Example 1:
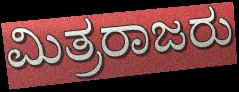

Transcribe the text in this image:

ಮಿತ್ರರಾಜರು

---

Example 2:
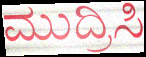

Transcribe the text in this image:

ಮುದ್ರಿಸಿ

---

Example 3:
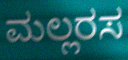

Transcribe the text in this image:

ಮಲ್ಲರಸ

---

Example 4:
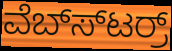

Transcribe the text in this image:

ವೆಬ್ಸ್‍ಟರ್ರ್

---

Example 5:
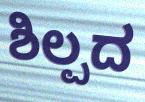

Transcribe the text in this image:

ಶಿಲ್ಪದ